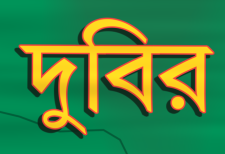
দুবির